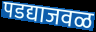
पडद्याजवळ